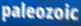
paleozoic